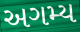
અગમ્ય